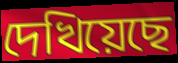
দেখিয়েছে